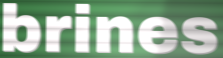
brines